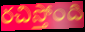
రచిస్తోంది